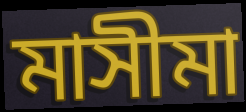
মাসীমা